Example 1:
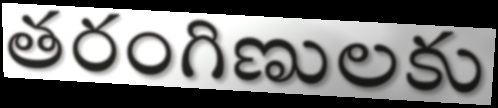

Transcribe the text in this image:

తరంగిణులకు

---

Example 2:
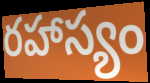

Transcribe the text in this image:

రహాస్యం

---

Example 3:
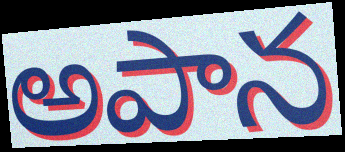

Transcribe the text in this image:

అపాన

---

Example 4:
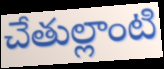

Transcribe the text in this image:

చేతుల్లాంటి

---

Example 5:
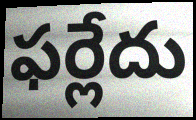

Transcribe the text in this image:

ఫర్లేదు